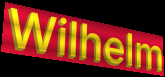
Wilhelm